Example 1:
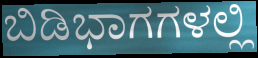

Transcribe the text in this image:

ಬಿಡಿಭಾಗಗಳಲ್ಲಿ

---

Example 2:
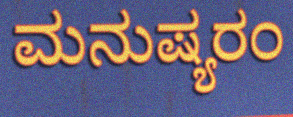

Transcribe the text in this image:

ಮನುಷ್ಯರಂ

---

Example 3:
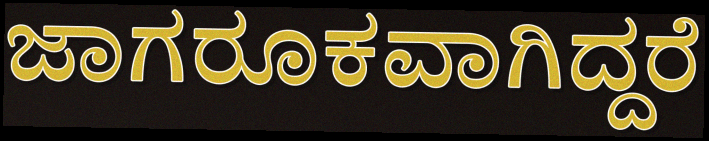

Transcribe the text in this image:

ಜಾಗರೂಕವಾಗಿದ್ದರೆ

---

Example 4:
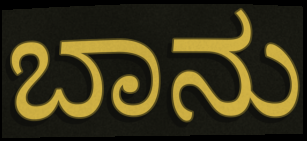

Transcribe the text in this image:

ಬಾನು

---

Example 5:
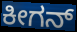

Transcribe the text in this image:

ಕೀಗನ್